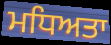
ਮਧਿਅਤਾ